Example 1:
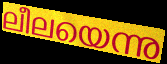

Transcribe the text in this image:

ലീലയെന്നു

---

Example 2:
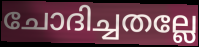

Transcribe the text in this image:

ചോദിച്ചതല്ലേ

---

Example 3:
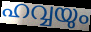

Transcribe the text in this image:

ഹവ്വയും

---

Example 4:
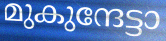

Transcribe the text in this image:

മുകുന്ദേട്ടാ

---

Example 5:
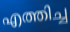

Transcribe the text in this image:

എത്തിച്ച